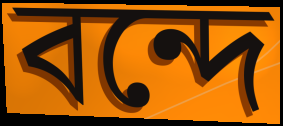
বন্দে